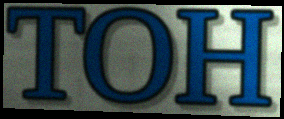
TOH